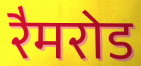
रैमरोड